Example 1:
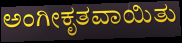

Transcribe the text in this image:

ಅಂಗೀಕೃತವಾಯಿತು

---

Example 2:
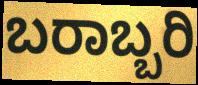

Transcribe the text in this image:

ಬರಾಬ್ಬರಿ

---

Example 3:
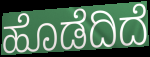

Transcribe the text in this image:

ಹೊಡೆದಿದೆ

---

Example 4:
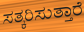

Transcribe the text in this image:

ಸತ್ಕರಿಸುತ್ತಾರೆ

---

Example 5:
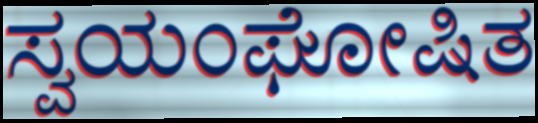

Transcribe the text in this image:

ಸ್ವಯಂಘೋಷಿತ